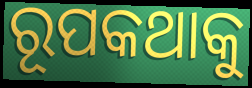
ରୂପକଥାକୁ